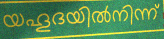
യഹൂദയിൽനിന്ന്